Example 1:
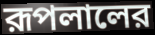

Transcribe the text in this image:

রূপলালের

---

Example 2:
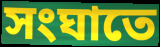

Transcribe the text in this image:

সংঘাতে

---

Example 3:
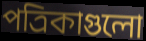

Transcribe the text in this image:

পত্রিকাগুলো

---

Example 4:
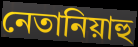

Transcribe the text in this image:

নেতানিয়াহু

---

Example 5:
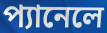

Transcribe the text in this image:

প্যানেলে